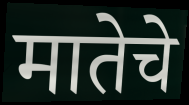
मातेचे